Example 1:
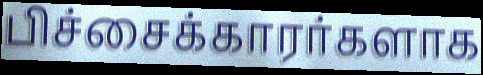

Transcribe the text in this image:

பிச்சைக்காரர்களாக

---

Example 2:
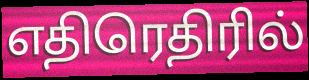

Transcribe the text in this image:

எதிரெதிரில்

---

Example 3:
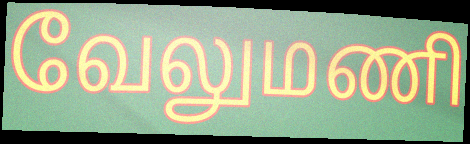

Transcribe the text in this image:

வேலுமணி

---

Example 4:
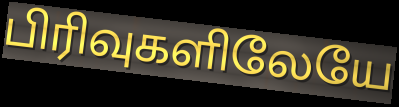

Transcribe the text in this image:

பிரிவுகளிலேயே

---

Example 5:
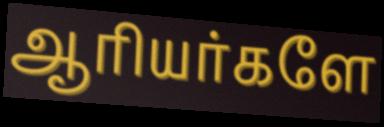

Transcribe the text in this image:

ஆரியர்களே